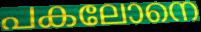
പകലോനെ